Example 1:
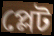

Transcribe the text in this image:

প্লেট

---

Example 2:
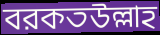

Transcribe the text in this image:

বরকতউল্লাহ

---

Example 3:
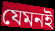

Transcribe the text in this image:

যেমনই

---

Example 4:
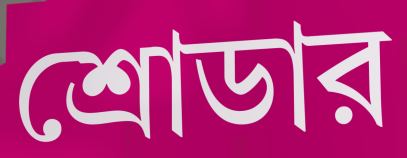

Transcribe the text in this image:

শ্রোডার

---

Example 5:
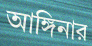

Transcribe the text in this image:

আঙ্গিনার